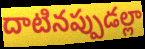
దాటినప్పుడల్లా